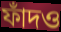
ফাঁদও